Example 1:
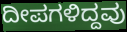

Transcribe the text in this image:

ದೀಪಗಳಿದ್ದವು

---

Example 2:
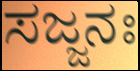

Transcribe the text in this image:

ಸಜ್ಜನಃ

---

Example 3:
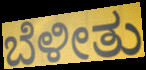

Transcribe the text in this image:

ಬೆಳೀತು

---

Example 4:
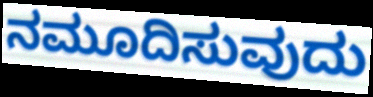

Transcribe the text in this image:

ನಮೂದಿಸುವುದು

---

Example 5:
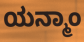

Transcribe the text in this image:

ಯನ್ಮಾಂ